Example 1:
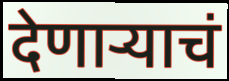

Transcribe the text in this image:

देणाऱ्याचं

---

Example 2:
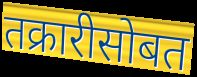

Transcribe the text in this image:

तक्रारीसोबत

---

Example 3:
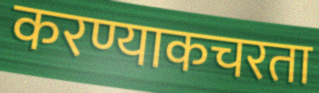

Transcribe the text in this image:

करण्याकचरता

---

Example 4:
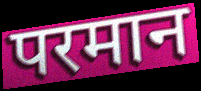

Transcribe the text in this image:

परमान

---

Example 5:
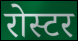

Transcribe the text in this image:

रोस्टर